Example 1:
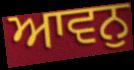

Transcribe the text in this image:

ਆਵਨੁ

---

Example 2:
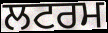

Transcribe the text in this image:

ਲਟਰਮ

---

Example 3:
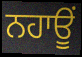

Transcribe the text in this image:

ਨਹਾਊਂ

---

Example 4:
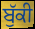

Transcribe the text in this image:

ਬੁੱਕੀ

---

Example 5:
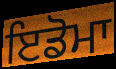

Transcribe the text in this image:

ਇਡੋਮਾ